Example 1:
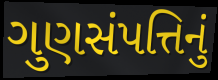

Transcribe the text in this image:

ગુણસંપત્તિનું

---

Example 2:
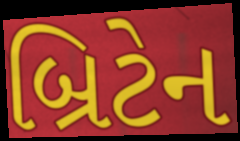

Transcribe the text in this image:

બ્રિટેન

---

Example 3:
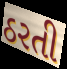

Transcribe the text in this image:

ઠરતી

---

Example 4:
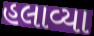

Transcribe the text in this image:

હલાવ્યા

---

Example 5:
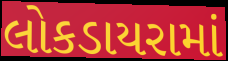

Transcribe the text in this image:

લોકડાયરામાં